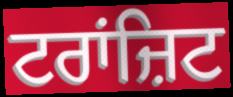
ਟਰਾਂਜ਼ਿਟ